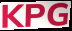
KPG